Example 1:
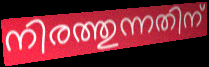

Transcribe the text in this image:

നിരത്തുന്നതിന്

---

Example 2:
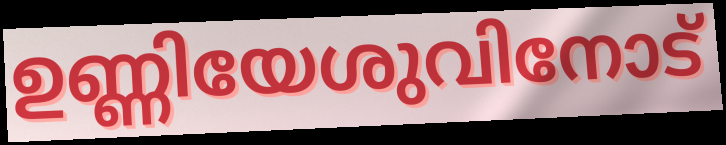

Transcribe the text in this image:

ഉണ്ണിയേശുവിനോട്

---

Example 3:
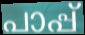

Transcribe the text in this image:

പാപ്പ്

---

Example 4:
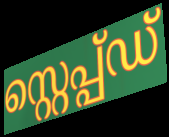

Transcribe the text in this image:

സ്റ്റെപ്പ്ഡ്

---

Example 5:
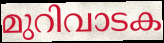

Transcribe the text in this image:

മുറിവാടക